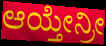
ಆಯ್ತೇನ್ರೀ